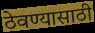
ठेवण्यासाठी